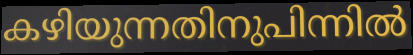
കഴിയുന്നതിനുപിന്നിൽ